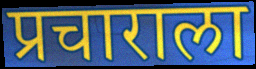
प्रचाराला